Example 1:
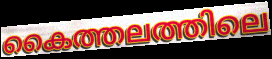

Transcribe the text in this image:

കൈത്തലത്തിലെ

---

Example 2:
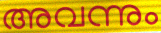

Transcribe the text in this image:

അവന്നും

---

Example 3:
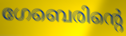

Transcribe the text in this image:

ഗേബെരിന്റെ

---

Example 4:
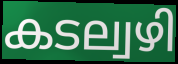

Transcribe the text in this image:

കടല്വഴി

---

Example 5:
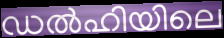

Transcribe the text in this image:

ഡൽഹിയിലെ